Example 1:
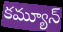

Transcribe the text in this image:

కమ్యూన్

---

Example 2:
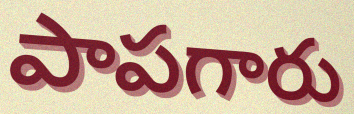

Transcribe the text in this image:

పాపగారు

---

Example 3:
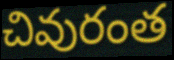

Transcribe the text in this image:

చివురంత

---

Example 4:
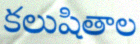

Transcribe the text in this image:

కలుషితాల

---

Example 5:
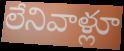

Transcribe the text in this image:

లేనివాళ్లూ